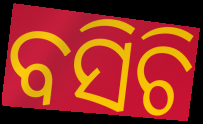
ବସିଚି